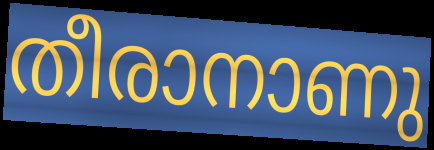
തീരാനാണു